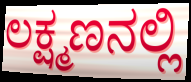
ಲಕ್ಷ್ಮಣನಲ್ಲಿ